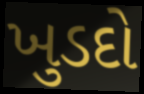
ખુડદો